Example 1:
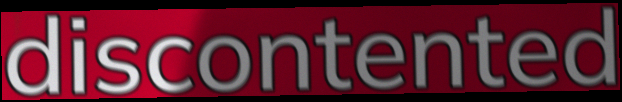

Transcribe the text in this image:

discontented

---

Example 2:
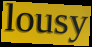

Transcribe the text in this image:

lousy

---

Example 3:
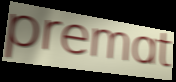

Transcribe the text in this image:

premat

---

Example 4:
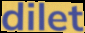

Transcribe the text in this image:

dilet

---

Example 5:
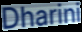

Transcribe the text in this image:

Dharini